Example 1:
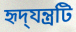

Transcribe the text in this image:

হৃদ্‌যন্ত্রটি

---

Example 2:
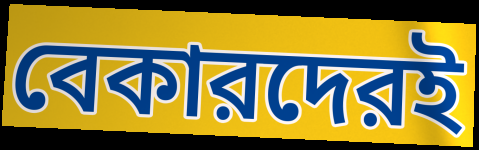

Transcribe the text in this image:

বেকারদেরই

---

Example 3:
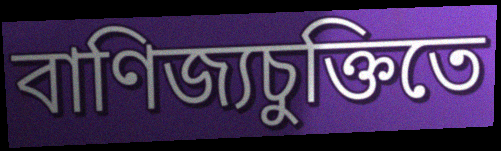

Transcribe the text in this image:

বাণিজ্যচুক্তিতে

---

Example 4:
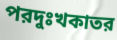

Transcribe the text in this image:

পরদুঃখকাতর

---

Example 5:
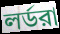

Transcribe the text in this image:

লর্ডরা